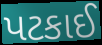
પટકાઈ